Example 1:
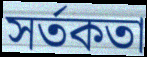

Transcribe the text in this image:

সর্তকতা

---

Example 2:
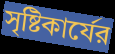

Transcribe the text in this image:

সৃষ্টিকার্যের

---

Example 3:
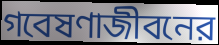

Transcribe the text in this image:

গবেষণাজীবনের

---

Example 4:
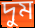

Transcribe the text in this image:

দুম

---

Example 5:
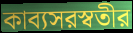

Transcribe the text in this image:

কাব্যসরস্বতীর